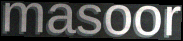
masoor